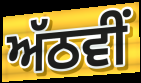
ਅੱਠਵੀੰ